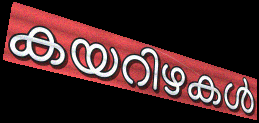
കയറിഴകൾ